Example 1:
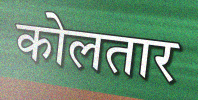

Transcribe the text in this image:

कोलतार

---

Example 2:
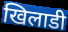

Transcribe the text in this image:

खिलाडी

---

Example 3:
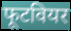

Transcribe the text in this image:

फूटवियर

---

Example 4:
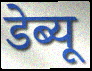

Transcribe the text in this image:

डेब्यू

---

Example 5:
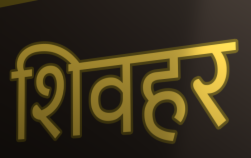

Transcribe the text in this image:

शिवहर